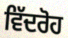
ਵਿੱਦਰੋਹ